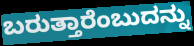
ಬರುತ್ತಾರೆಂಬುದನ್ನು